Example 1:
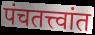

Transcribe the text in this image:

पंचतत्त्वांत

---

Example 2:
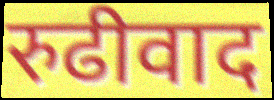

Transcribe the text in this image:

रुढीवाद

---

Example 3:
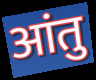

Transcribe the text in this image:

आंतु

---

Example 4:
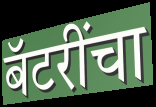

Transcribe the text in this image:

बॅटरींचा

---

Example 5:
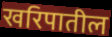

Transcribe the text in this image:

खरिपातील